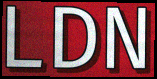
LDN